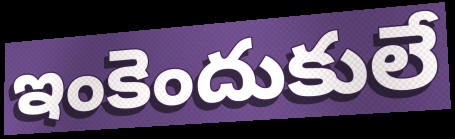
ఇంకెందుకులే